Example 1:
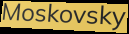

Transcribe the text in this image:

Moskovsky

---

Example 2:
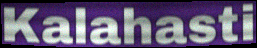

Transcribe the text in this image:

Kalahasti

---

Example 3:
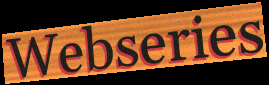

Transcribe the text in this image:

Webseries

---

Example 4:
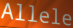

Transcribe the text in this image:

Allele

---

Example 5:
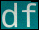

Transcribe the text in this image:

df